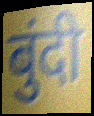
बुंदी